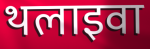
थलाइवा